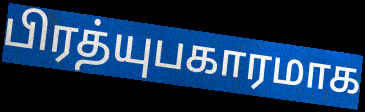
பிரத்யுபகாரமாக